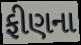
ફીણના